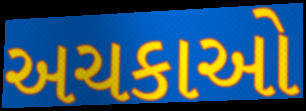
અચકાઓ